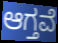
ಆಗ್ತವೆ